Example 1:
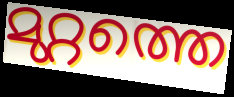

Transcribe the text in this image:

മുറ്റത്തെ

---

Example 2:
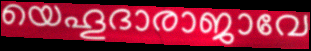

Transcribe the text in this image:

യെഹൂദാരാജാവേ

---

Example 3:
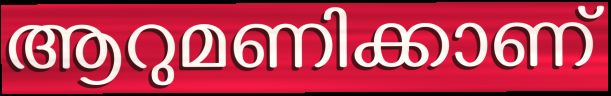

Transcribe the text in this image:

ആറുമണിക്കാണ്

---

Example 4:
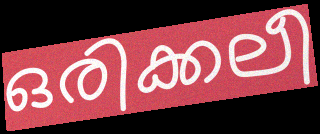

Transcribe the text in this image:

ഒരിക്കലീ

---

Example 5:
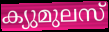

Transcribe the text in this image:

ക്യുമുലസ്